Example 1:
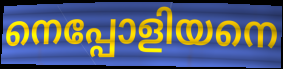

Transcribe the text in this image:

നെപ്പോളിയനെ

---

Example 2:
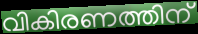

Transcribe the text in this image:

വികിരണത്തിന്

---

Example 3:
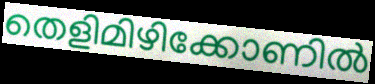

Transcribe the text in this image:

തെളിമിഴിക്കോണിൽ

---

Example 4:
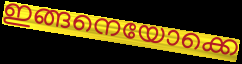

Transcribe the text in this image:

ഇങ്ങനെയോക്കെ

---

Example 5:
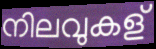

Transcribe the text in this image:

നിലവുകള്